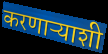
करणाऱ्याशी